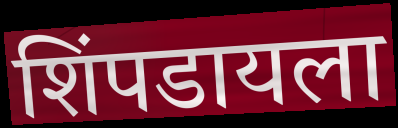
शिंपडायला